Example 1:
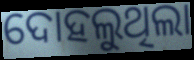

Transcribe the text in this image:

ଦୋହଲୁଥିଲା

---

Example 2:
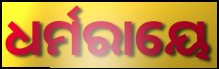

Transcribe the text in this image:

ଧର୍ମରାୟେ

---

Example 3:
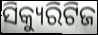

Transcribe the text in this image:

ସିକ୍ୟୁରିଟିଜ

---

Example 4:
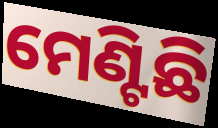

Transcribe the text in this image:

ମେଣ୍ଟିଛି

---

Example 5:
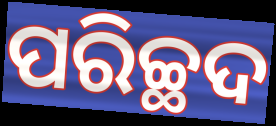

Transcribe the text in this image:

ପରିଚ୍ଛଦ